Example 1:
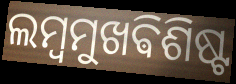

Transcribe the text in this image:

ଲମ୍ବମୁଖଵିଶିଷ୍ଟ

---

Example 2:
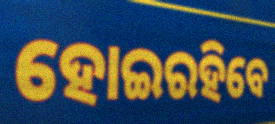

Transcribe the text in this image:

ହୋଇରହିବେ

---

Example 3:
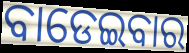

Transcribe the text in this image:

ବାଡେଇବାର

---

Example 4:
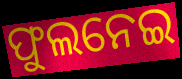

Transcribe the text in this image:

ଫୁଲନେଇ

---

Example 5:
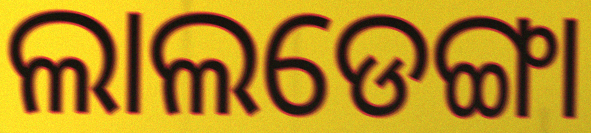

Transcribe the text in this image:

ଲାଲଡେଙ୍ଗା